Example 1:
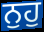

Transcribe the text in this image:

ਨੁਹੁ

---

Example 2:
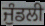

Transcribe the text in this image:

ਜੁੰਡਲੀ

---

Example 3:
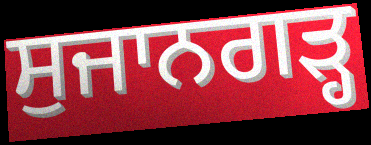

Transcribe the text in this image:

ਸੁਜਾਨਗੜ੍ਹ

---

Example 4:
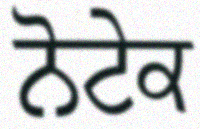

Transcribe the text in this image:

ਨੋਟੇਕ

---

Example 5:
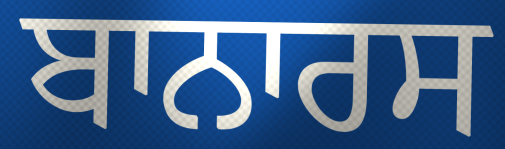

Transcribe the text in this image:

ਬਾਨਾਰਸ